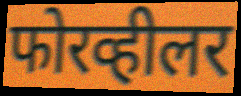
फोरव्हीलर